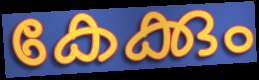
കേക്കും